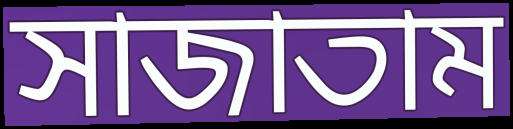
সাজাতাম